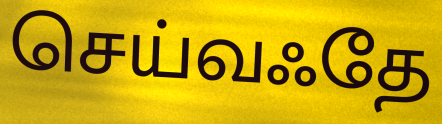
செய்வஃதே